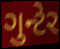
ગુન્ટેર